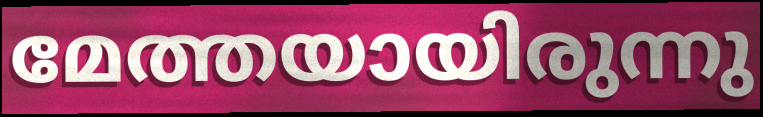
മേത്തയായിരുന്നു